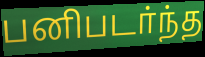
பனிபடர்ந்த